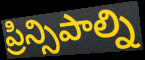
ప్రిన్సిపాల్ని